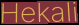
Hekali